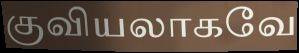
குவியலாகவே